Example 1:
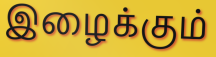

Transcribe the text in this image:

இழைக்கும்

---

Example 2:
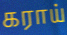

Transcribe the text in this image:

கராய்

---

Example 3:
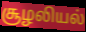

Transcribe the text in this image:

சூழலியல்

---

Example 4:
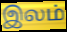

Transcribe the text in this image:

இலம்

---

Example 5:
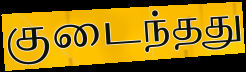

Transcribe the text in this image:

குடைந்தது